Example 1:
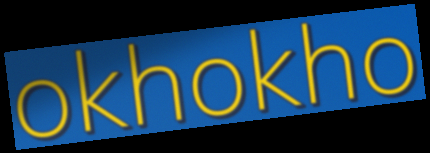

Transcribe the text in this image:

okhokho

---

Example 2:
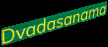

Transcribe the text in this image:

Dvadasanama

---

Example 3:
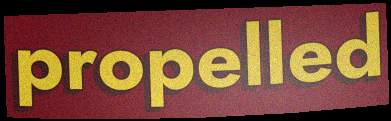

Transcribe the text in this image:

propelled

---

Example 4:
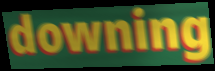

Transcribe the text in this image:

downing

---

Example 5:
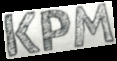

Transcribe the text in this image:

KPM